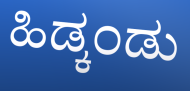
ಹಿಡ್ಕಂಡು